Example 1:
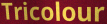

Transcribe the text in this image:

Tricolour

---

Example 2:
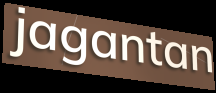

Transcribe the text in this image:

jagantan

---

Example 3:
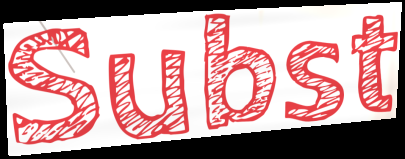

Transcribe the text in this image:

Subst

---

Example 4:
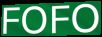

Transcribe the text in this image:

FOFO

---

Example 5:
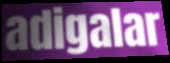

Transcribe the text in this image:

adigalar